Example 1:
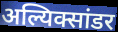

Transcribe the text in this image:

अल्यिक्सांडर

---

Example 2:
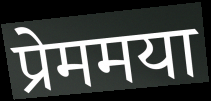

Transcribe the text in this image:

प्रेममया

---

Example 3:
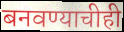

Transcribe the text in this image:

बनवण्याचीही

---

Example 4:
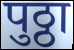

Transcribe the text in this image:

पुठ्ठा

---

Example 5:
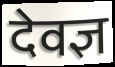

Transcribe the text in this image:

देवज्ञ